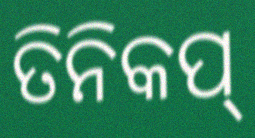
ତିନିକପ୍